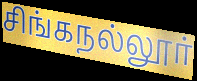
சிங்கநல்லூர்